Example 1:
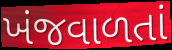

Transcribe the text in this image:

ખંજવાળતાં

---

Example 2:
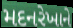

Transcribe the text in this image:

મદનરેખાને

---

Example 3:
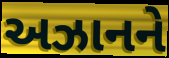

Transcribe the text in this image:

અઝાનને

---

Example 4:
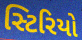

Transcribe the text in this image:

સ્ટિરિયો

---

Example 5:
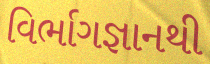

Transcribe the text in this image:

વિર્ભાગજ્ઞાનથી